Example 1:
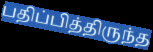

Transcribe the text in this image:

பதிப்பித்திருந்த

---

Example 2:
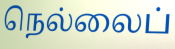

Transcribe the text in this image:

நெல்லைப்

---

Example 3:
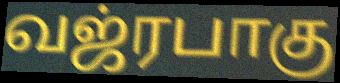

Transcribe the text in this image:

வஜ்ரபாகு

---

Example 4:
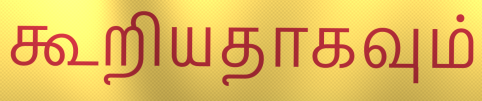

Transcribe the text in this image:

கூறியதாகவும்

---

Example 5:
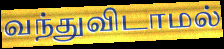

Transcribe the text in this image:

வந்துவிடாமல்